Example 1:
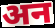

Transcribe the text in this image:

अन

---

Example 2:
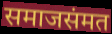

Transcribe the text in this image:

समाजसंमत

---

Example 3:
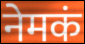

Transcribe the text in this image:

नेमकं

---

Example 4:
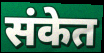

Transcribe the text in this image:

संकेत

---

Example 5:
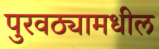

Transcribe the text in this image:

पुरवठ्यामधील